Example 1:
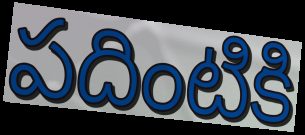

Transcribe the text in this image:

పదింటికి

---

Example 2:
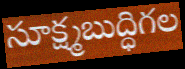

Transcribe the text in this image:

సూక్ష్మబుద్ధిగల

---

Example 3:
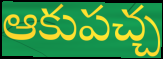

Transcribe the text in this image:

ఆకుపచ్చ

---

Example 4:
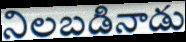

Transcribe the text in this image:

నిలబడినాడు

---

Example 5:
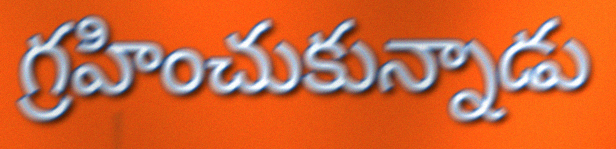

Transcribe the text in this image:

గ్రహించుకున్నాడు